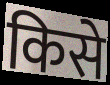
किसे